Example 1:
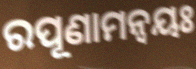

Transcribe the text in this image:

ରପୂଣାମନ୍ଵୟଃ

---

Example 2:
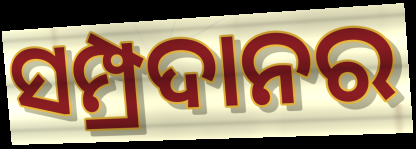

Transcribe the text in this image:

ସମ୍ପ୍ରଦାନର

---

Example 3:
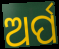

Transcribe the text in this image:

ଅର୍ପ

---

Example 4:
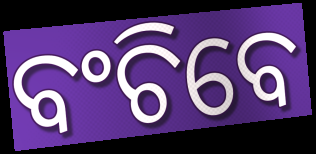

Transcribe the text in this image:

ବଂଚିବେ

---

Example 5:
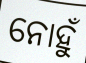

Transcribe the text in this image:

ନୋହୁଁ